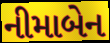
નીમાબેન